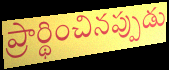
ప్రార్థించినప్పుడు